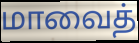
மாவைத்